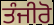
ਤੰਜੀਰੋ